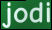
jodi